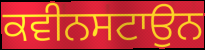
ਕਵੀਨਸਟਾਉਨ